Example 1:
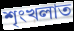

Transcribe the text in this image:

শৃংখলাত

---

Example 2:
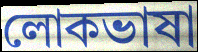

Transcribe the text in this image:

লোকভাষা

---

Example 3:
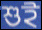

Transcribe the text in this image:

শুই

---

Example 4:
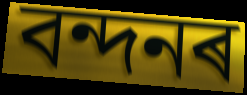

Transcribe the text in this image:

বন্দনৰ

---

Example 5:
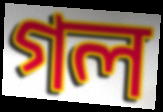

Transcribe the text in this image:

গল